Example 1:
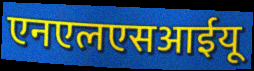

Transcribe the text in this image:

एनएलएसआईयू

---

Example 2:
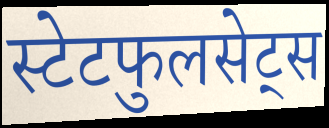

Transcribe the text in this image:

स्टेटफुलसेट्स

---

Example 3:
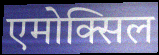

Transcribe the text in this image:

एमोक्सिल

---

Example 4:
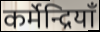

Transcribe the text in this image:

कर्मेन्द्रियाँ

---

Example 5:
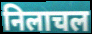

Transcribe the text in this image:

निलाचल